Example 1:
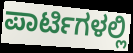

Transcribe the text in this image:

ಪಾರ್ಟಿಗಳಲ್ಲಿ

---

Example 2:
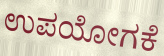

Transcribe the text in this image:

ಉಪಯೋಗಕೆ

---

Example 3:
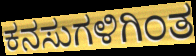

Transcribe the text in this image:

ಕನಸುಗಳಿಗಿಂತ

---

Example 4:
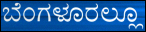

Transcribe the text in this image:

ಬೆಂಗಳೂರಲ್ಲೂ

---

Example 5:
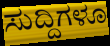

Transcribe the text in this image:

ಸುದ್ದಿಗಳೂ